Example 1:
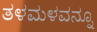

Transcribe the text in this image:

ತಳಮಳವನ್ನೂ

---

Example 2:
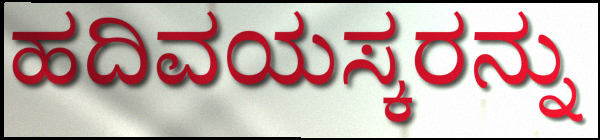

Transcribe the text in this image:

ಹದಿವಯಸ್ಕರನ್ನು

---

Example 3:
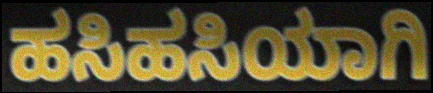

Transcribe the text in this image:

ಹಸಿಹಸಿಯಾಗಿ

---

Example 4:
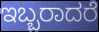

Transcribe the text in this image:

ಇಬ್ಬರಾದರೆ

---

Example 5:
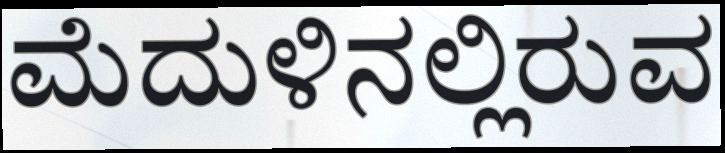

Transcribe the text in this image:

ಮೆದುಳಿನಲ್ಲಿರುವ